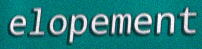
elopement